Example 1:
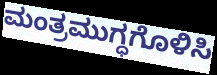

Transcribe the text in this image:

ಮಂತ್ರಮುಗ್ಧಗೊಳಿಸಿ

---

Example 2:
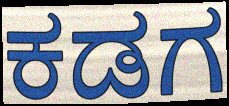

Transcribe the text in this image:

ಕಡಗ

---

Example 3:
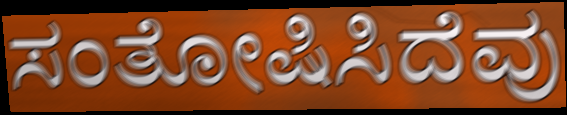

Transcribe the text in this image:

ಸಂತೋಷಿಸಿದೆವು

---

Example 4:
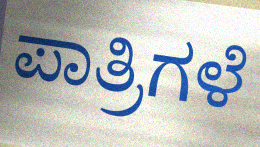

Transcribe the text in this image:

ಪಾತ್ರಿಗಳೆ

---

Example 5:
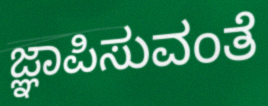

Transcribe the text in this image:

ಜ್ಞಾಪಿಸುವಂತೆ